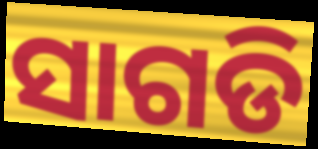
ସାଗଡି